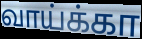
வாய்க்கா